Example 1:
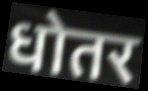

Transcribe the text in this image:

धोतर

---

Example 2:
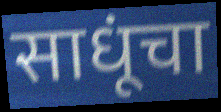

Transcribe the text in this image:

साधूंचा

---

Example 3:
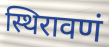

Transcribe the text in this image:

स्थिरावणं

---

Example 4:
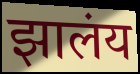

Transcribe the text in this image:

झालंय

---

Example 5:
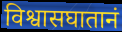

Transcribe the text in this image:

विश्वासघातानं